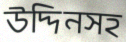
উদ্দিনসহ